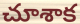
చూశాక